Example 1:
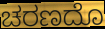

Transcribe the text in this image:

ಚರಣದೊ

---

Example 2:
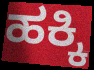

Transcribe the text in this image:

ಹಕ್ಕಿ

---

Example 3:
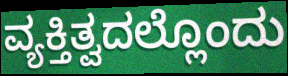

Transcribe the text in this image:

ವ್ಯಕ್ತಿತ್ವದಲ್ಲೊಂದು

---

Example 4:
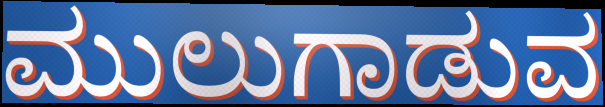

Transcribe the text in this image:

ಮುಲುಗಾಡುವ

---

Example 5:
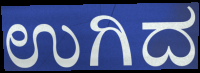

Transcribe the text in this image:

ಉಗಿದ